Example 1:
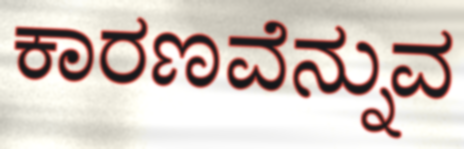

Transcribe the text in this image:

ಕಾರಣವೆನ್ನುವ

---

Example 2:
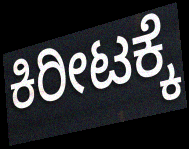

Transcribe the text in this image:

ಕಿರೀಟಕ್ಕೆ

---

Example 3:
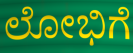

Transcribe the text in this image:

ಲೋಭಿಗೆ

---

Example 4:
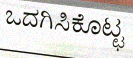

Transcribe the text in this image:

ಒದಗಿಸಿಕೊಟ್ಟ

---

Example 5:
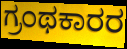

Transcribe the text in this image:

ಗ್ರಂಥಕಾರರ